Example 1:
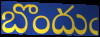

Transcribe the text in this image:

బొందుఁ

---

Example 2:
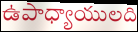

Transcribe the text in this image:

ఉపాధ్యాయులది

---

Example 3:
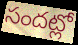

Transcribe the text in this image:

సందట్లో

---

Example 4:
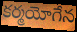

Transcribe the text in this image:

కర్మయోగేన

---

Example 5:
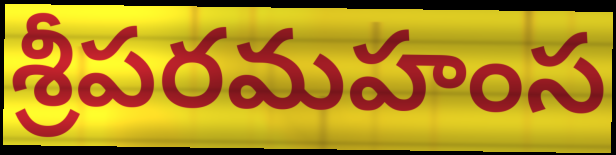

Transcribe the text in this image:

శ్రీపరమహంస